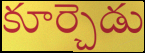
కూర్చెడు